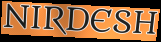
NIRDESH